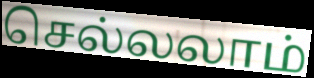
செல்லலாம்